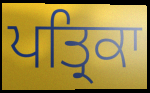
ਪਤ੍ਰਿਕਾ